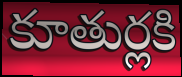
కూతుర్లకి